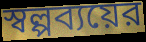
স্বল্পব্যয়ের